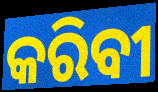
କରିବୀ